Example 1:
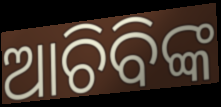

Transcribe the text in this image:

ଆଚିବିଙ୍କ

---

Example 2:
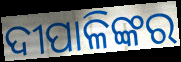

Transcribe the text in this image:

ଦୀପାଳିଙ୍କର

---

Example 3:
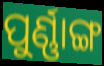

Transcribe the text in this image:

ପୁର୍ଣ୍ଣାଙ୍ଗ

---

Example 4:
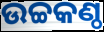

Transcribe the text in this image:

ଉଚ୍ଚକଣ୍ଠ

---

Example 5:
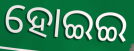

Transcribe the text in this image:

ହୋଇଇ